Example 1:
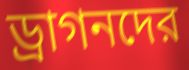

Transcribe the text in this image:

ড্রাগনদের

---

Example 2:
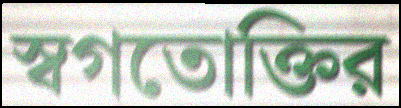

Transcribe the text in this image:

স্বগতোক্তির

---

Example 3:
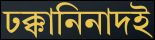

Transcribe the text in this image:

ঢক্কানিনাদই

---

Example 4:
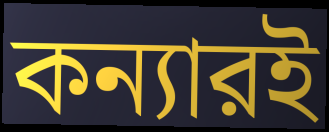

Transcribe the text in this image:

কন্যারই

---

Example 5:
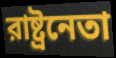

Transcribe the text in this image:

রাষ্ট্রনেতা